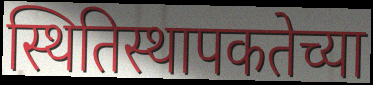
स्थितिस्थापकतेच्या